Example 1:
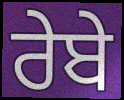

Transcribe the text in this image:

ਰੇਬੇ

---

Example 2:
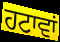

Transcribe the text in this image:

ਹਟਾਵਾਂ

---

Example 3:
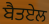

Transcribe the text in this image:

ਬੈਤਏਲ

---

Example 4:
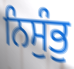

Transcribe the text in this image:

ਨਿਸੁੰਭੁ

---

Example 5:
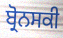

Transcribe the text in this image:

ਬ੍ਰੋਨਸਕੀ